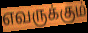
எவருக்கும்